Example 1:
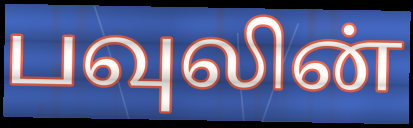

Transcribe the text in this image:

பவுலின்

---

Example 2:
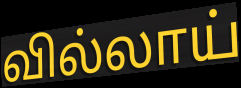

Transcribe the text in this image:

வில்லாய்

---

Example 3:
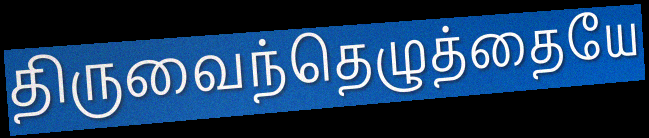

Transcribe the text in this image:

திருவைந்தெழுத்தையே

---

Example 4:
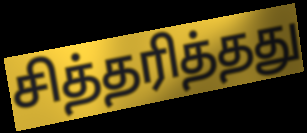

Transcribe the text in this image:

சித்தரித்தது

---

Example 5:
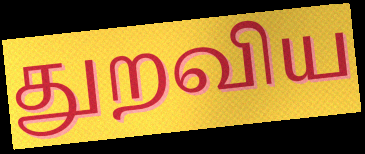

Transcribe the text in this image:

துறவிய